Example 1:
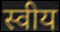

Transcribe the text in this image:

स्वीय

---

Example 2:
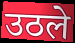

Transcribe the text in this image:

उठले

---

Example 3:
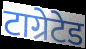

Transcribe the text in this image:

टाग्रेटेड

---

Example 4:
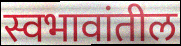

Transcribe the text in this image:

स्वभावांतील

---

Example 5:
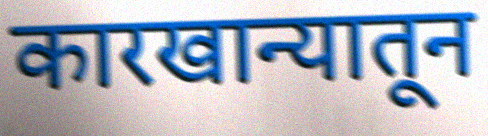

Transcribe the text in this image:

कारखान्यातून